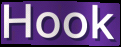
Hook